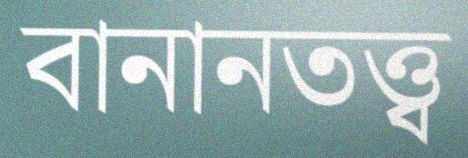
বানানতত্ত্ব